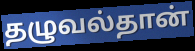
தழுவல்தான்